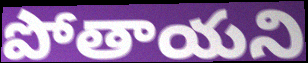
పోతాయని